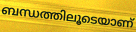
ബന്ധത്തിലൂടെയാണ്